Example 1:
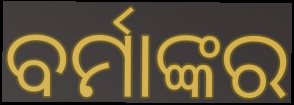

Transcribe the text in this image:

ବର୍ମାଙ୍କର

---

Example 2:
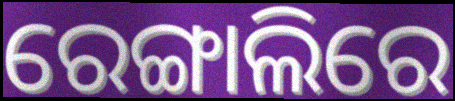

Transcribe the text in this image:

ରେଙ୍ଗାଲିରେ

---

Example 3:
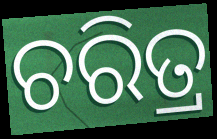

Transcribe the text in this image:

ଚରିତ୍ର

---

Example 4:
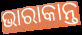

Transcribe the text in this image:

ଭାରାକାନ୍ତ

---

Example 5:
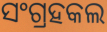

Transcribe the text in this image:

ସଂଗ୍ରହକଲ